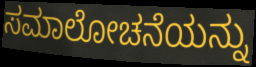
ಸಮಾಲೋಚನೆಯನ್ನು